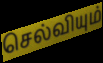
செல்வியும்